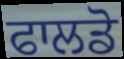
ਫਾਲਡੋ